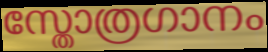
സ്തോത്രഗാനം